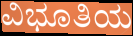
ವಿಭೂತಿಯ